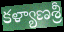
కళ్యాణశ్రీ